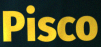
Pisco